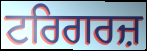
ਟਰਿਗਰਜ਼